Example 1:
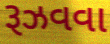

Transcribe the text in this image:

રૂઝવવા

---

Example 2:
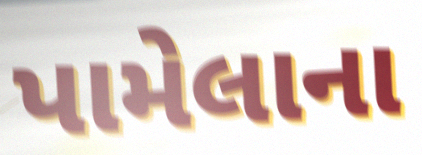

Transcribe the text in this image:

પામેલાના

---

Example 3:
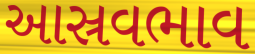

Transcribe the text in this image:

આસ્રવભાવ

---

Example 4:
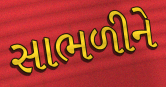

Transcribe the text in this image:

સાભળીને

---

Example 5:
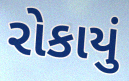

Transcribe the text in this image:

રોકાયું